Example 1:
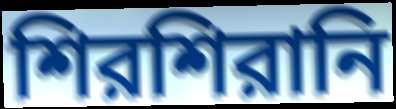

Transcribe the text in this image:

শিরশিরানি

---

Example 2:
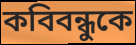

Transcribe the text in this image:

কবিবন্ধুকে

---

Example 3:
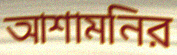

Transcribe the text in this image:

আশামনির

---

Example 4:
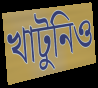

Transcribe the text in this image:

খাটুনিও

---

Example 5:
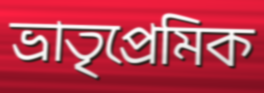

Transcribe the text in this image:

ভ্রাতৃপ্রেমিক